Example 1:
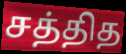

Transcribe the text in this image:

சத்தித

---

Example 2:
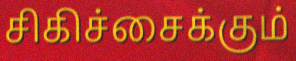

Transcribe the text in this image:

சிகிச்சைக்கும்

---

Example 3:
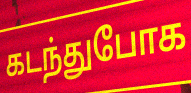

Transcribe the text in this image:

கடந்துபோக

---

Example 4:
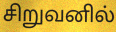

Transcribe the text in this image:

சிறுவனில்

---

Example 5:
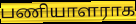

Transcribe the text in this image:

பணியாளராக